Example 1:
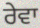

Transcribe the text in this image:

ਰੇਵਾ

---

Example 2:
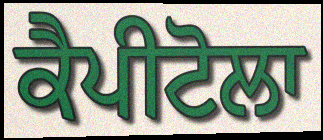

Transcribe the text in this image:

ਕੈਪੀਟੋਲਾ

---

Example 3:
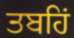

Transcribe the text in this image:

ਤਬਹਿਂ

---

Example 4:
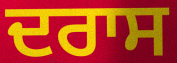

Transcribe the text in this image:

ਦਰਾਸ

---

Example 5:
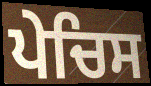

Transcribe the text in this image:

ਪੇਚਿਸ